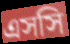
এসসি